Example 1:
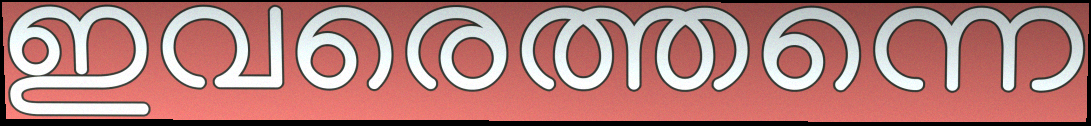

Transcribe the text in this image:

ഇവരെത്തന്നെ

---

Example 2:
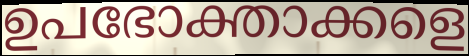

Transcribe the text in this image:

ഉപഭോക്താക്കളെ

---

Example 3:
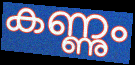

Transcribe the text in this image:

കണ്ണും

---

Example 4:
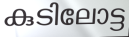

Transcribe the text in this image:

കുടിലോട്ട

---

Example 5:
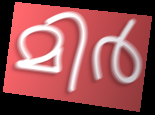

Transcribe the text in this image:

മിർ